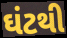
ઘંટથી